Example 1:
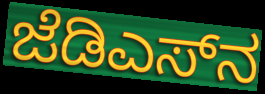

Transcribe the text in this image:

ಜೆಡಿಎಸ್‌ನ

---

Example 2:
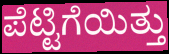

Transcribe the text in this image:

ಪೆಟ್ಟಿಗೆಯಿತ್ತು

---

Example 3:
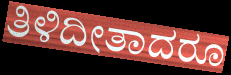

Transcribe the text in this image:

ತಿಳಿದೀತಾದರೂ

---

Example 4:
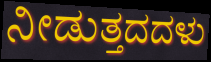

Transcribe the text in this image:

ನೀಡುತ್ತದದಳು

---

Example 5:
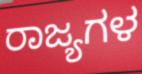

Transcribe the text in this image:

ರಾಜ್ಯಗಳ